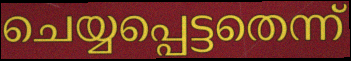
ചെയ്യപ്പെട്ടതെന്ന്